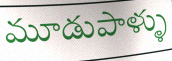
మూడుపాళ్ళు